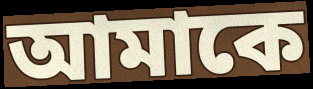
আমাকে